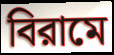
বিরামে